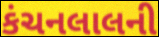
કંચનલાલની